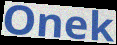
Onek